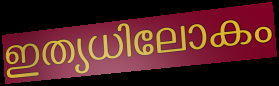
ഇത്യധിലോകം